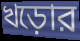
খড়োর